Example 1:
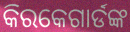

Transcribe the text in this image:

କିରକେଗାର୍ଡଙ୍କ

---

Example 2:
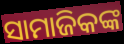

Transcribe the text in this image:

ସାମାଜିକଙ୍କ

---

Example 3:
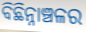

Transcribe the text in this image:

ବିଛିନ୍ନାଞ୍ଚଳର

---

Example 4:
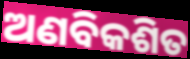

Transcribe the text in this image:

ଅଣବିକଶିତ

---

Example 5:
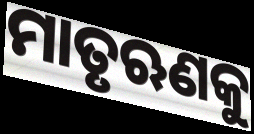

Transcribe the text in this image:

ମାତୃଋଣକୁ